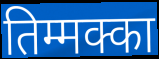
तिम्मक्का